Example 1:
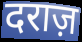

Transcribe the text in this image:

दराज़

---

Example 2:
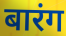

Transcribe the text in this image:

बारंग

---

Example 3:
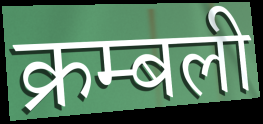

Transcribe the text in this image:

क्रम्बली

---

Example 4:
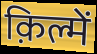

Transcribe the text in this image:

क़िल्में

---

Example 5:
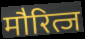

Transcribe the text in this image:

मौरित्ज